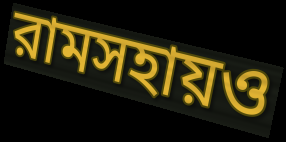
রামসহায়ও